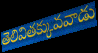
తెలివితక్కువవాడు